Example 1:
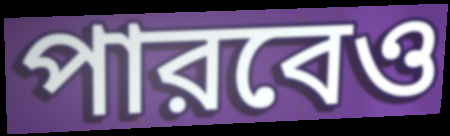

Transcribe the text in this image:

পারবেও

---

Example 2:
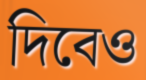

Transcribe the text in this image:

দিবেও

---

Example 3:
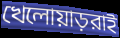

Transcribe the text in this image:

খেলোয়াড়রাই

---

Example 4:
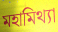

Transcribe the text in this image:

মহামিথ্যা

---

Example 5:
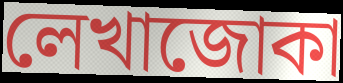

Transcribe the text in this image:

লেখাজোকা